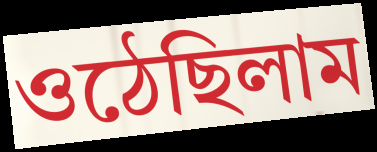
ওঠেছিলাম